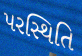
પરસ્થિતિ